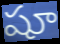
షూ